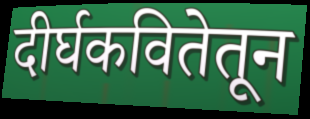
दीर्घकवितेतून